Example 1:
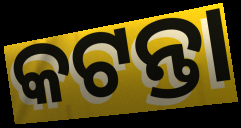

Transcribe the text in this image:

କଟନ୍ତା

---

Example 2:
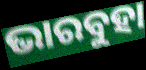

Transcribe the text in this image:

ଭାରବୁହା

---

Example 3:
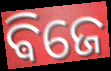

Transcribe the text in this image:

ଵିଜେ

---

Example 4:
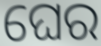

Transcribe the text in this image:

ଘେର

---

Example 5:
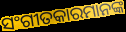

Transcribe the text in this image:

ସଂଗୀତକାରମାନଙ୍କ